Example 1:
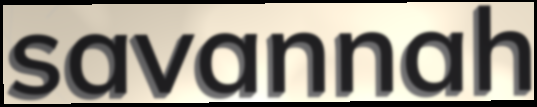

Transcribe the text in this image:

savannah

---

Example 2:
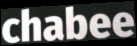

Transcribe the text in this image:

chabee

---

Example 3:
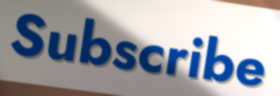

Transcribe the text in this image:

Subscribe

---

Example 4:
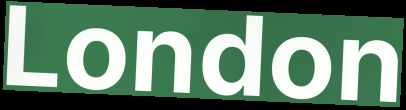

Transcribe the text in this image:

London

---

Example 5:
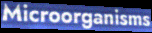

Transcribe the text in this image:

Microorganisms